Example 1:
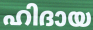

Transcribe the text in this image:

ഹിദായ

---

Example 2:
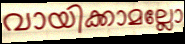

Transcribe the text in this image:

വായിക്കാമല്ലോ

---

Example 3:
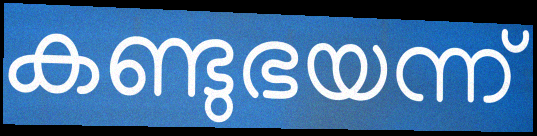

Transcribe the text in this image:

കണ്ടുഭയന്ന്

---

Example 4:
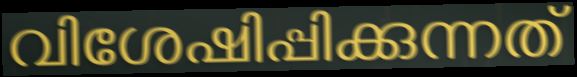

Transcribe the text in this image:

വിശേഷിപ്പിക്കുന്നത്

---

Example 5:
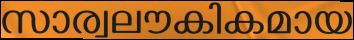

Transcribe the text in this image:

സാര്വലൗകികമായ